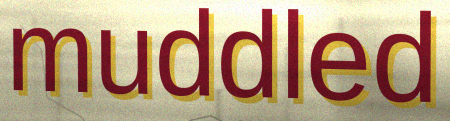
muddled